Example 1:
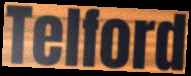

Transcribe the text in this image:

Telford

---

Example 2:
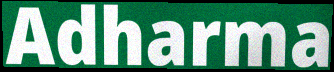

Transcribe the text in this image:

Adharma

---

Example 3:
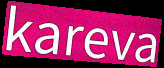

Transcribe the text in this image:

kareva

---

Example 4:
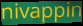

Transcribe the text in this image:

nivappin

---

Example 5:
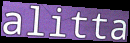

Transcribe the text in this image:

alitta